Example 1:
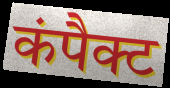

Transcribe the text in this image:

कंपैक्ट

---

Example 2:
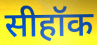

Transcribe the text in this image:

सीहॉक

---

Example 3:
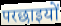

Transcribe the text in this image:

परछाइयों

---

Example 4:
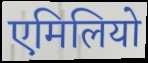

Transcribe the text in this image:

एमिलियो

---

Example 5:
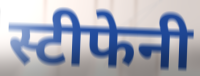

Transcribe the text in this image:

स्टीफेनी